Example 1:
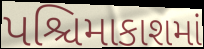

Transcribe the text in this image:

પશ્ચિમાકાશમાં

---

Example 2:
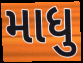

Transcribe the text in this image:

માધુ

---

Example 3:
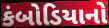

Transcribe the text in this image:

કંબોડિયાનો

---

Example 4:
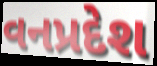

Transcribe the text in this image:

વનપ્રદેશ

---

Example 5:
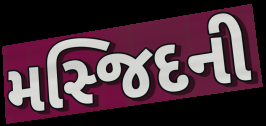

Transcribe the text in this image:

મસ્જિદની